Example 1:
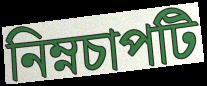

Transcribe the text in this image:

নিম্নচাপটি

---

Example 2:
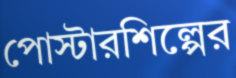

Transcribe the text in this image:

পোস্টারশিল্পের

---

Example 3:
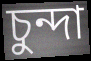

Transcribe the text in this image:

চুন্দা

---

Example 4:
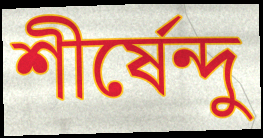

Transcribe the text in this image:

শীর্ষেন্দু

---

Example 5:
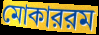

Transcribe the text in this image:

মোকাররম